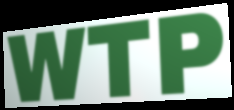
WTP